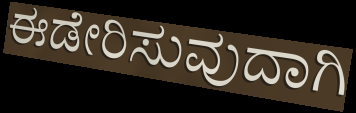
ಈಡೇರಿಸುವುದಾಗಿ